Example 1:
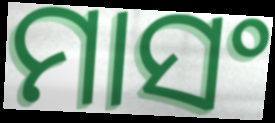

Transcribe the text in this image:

ମାସଂ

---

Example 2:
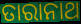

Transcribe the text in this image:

ତାରାନାଥ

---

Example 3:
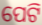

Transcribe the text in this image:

ପେଟି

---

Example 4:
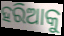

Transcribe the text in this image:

ହରିଆକୁ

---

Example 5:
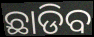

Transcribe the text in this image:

ଛାଡିବ